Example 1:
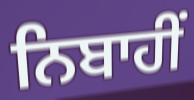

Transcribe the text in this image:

ਨਿਬਾਹੀਂ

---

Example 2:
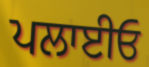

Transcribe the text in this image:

ਪਲਾਈਓ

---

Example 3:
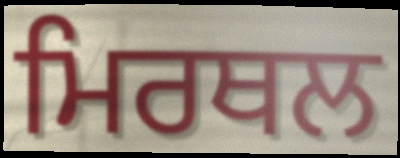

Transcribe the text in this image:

ਮਿਰਥਲ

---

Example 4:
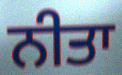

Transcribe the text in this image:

ਨੀਤਾ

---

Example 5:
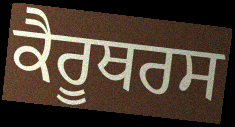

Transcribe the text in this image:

ਕੈਰੂਥਰਸ